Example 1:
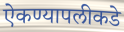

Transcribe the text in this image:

ऐकण्यापलीकडे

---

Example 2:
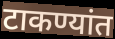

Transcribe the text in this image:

टाकण्यांत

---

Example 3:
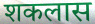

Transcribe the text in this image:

शकलास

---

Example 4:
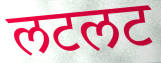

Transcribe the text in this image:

लटलट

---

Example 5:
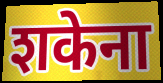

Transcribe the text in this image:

शकेना